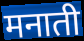
मनाती